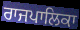
ਰਾਜਪਾਲਿਕਾ